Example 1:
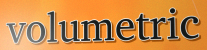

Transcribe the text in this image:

volumetric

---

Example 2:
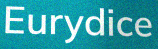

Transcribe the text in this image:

Eurydice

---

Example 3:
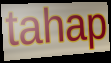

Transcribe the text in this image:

tahap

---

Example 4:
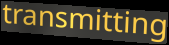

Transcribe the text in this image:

transmitting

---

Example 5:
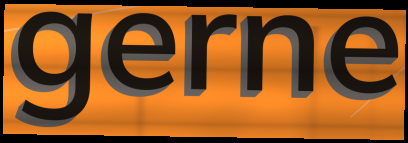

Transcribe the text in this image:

gerne